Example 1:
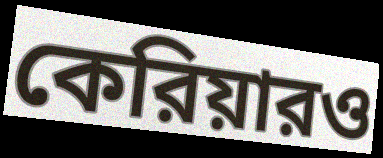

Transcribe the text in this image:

কেরিয়ারও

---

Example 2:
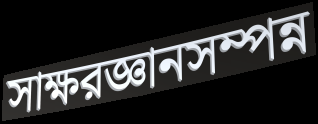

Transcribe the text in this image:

সাক্ষরজ্ঞানসম্পন্ন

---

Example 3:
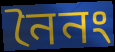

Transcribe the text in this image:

নৈনং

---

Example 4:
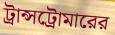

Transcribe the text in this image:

ট্রান্সট্রোমারের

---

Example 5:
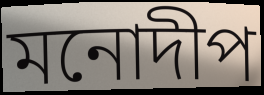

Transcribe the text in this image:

মনোদীপ